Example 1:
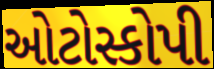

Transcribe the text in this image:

ઓટોસ્કોપી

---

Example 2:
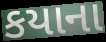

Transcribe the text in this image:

કયાના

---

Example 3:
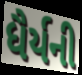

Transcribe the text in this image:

ધૈર્યની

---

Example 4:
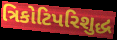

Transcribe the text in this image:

ત્રિકોટિપરિશુદ્ધ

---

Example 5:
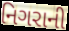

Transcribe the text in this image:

નિગરાની